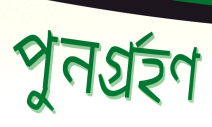
পুনর্গ্রহণ